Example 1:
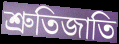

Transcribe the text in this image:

শ্রুতিজাতি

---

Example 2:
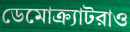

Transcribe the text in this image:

ডেমোক্র্যাটরাও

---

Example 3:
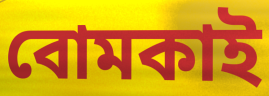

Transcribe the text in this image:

বোমকাই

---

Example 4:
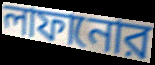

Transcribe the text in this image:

লাফানোর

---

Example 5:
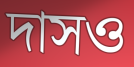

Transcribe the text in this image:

দাসও